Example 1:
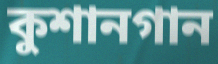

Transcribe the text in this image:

কুশানগান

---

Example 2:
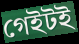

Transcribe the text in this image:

গেইটই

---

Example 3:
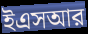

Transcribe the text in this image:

ইএসআর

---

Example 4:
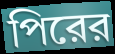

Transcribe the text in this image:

পিরের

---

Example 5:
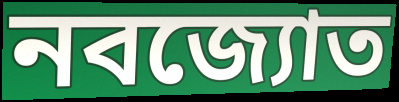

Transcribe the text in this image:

নবজ্যোত